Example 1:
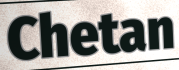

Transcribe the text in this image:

Chetan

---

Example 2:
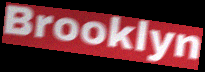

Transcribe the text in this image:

Brooklyn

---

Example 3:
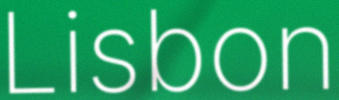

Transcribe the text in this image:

Lisbon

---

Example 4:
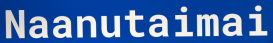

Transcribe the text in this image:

Naanutaimai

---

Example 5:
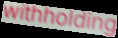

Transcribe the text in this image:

withholding